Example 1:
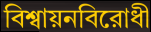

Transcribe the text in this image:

বিশ্বায়নবিরোধী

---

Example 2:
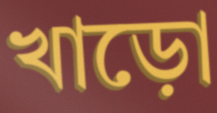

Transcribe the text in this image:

খাড়ো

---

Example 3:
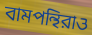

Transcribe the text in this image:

বামপন্থিরাও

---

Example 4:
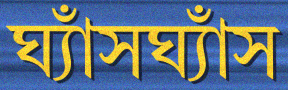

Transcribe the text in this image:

ঘ্যাঁসঘ্যাঁস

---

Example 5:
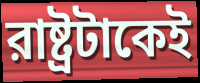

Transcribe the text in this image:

রাষ্ট্রটাকেই